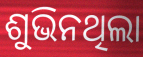
ଶୁଭିନଥିଲା